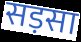
सड़सा